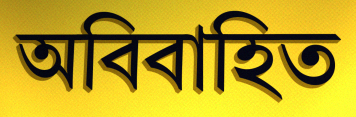
অবিবাহিত